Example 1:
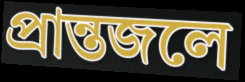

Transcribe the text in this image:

প্রান্তজলে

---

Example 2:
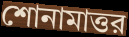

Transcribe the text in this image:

শোনামাত্তর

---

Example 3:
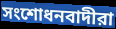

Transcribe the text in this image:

সংশোধনবাদীরা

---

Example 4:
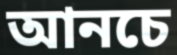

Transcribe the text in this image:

আনচে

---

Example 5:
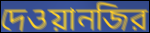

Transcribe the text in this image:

দেওয়ানজির